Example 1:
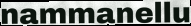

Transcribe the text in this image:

nammanellu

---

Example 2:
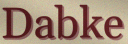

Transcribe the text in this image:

Dabke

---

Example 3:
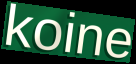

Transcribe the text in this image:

koine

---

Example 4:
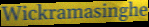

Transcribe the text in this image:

Wickramasinghe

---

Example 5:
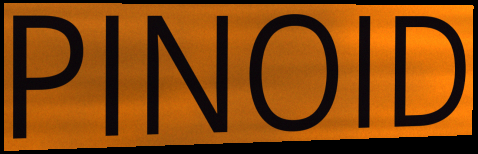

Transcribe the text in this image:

PINOID